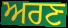
ਅਰਣ